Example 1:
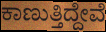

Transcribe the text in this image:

ಕಾಣುತ್ತಿದ್ದೇವೆ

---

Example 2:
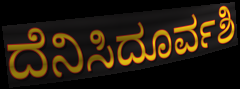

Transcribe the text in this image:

ದೆನಿಸಿದೂರ್ವಶಿ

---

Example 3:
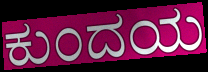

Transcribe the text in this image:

ಕುಂದಯ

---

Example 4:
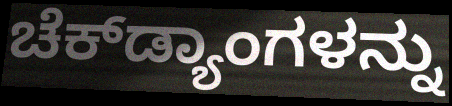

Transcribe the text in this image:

ಚೆಕ್‌ಡ್ಯಾಂಗಳನ್ನು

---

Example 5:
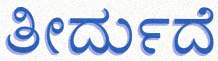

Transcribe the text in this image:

ತೀರ್ದುದೆ